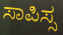
ಸಾಪಿಸ್ಸ